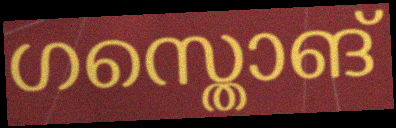
ഗസ്തൊങ്